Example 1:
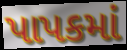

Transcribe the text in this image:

પાપકમાં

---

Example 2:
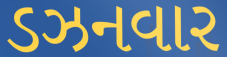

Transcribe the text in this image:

ડઝનવાર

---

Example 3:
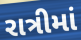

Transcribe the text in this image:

રાત્રીમાં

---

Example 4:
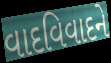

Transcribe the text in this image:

વાદવિવાદને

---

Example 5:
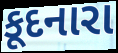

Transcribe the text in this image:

કૂદનારા